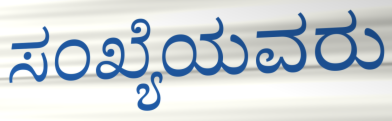
ಸಂಖ್ಯೆಯವರು